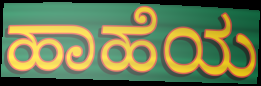
ಹಾಹೆಯ